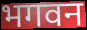
भगवन